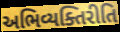
અભિવ્યક્તિરીતિ